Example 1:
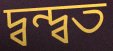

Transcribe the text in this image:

দ্বন্দ্বত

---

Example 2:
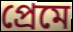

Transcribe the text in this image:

প্ৰেমে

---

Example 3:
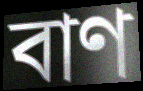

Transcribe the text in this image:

বাণ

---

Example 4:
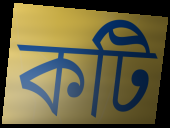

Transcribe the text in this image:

কটি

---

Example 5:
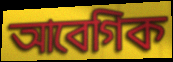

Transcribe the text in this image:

আবেগিক